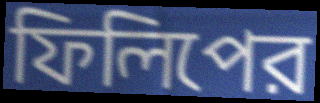
ফিলিপের